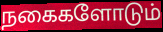
நகைகளோடும்